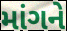
માંગને